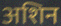
अशिन